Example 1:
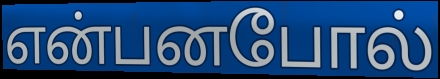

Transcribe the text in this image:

என்பனபோல்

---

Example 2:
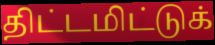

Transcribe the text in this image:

திட்டமிட்டுக்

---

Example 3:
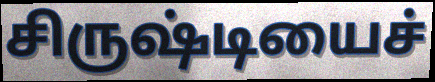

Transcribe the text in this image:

சிருஷ்டியைச்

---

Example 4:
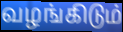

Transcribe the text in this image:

வழங்கிடும்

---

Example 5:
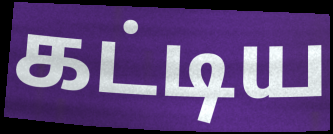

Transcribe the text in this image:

கட்டிய